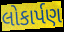
લોકાર્પણ